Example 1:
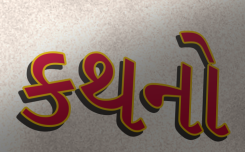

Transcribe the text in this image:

કથનો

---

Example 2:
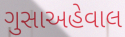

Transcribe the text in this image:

ગુસાઅહેવાલ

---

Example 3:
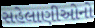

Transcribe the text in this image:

સહેલાણીઓનો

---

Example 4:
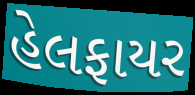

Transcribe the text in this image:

હેલફાયર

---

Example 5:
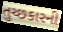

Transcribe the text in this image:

તુચ્છકારની